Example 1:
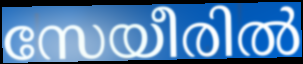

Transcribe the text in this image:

സേയീരിൽ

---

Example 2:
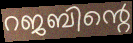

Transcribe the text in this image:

റജബിന്റെ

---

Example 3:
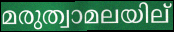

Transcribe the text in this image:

മരുത്വാമലയില്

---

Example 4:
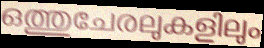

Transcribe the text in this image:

ഒത്തുചേരലുകളിലും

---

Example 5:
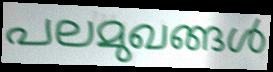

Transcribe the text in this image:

പലമുഖങ്ങൾ